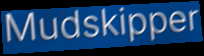
Mudskipper